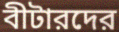
বীটারদের